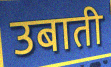
उबाती